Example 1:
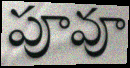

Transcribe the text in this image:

పూవూ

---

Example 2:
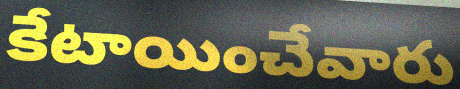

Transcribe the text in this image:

కేటాయించేవారు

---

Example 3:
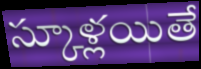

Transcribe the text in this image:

స్కూళ్లయితే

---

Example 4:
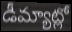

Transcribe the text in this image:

డీమ్యాట్లో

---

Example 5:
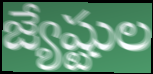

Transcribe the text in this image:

జ్యేష్టుల